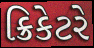
ક્રિકેટરે